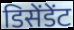
डिसेंडेंट